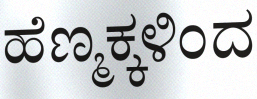
ಹೆಣ್ಮಕ್ಕಳಿಂದ